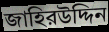
জাহিরউদ্দিন